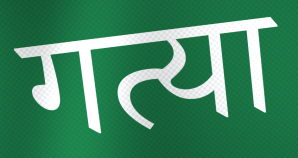
गत्या